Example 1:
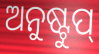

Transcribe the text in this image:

ଅନୁଷ୍ଟୁପ୍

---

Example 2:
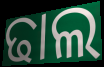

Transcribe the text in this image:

ଢାଲ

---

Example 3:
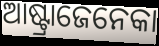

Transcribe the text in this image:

ଆଷ୍ଟ୍ରାଜେନେକା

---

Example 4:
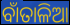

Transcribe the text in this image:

ବାଁତାଳିଆ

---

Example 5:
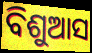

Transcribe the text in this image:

ବିଶୁଆସ